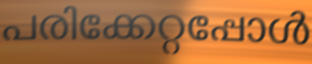
പരിക്കേറ്റപ്പോൾ